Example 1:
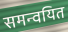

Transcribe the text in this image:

समन्वयित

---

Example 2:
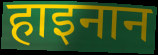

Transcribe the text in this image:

हाइनान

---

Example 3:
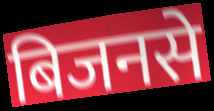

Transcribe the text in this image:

बिजनसे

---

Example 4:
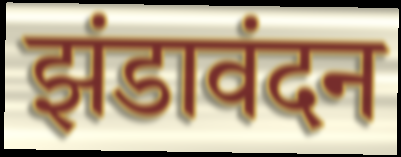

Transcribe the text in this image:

झंडावंदन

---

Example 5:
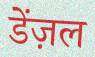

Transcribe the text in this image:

डेंज़ल